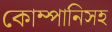
কোম্পানিসহ